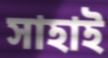
সাহাই